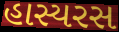
હાસ્યરસ